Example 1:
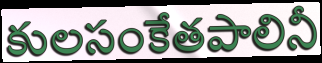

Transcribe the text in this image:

కులసంకేతపాలినీ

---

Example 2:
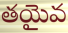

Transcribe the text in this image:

తయైవ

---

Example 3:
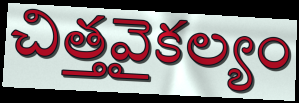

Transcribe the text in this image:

చిత్తవైకల్యం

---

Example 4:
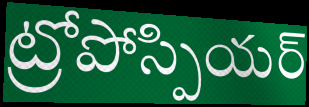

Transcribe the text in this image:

ట్రోపోస్పియర్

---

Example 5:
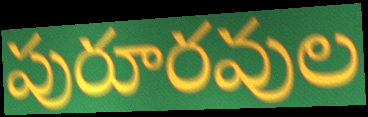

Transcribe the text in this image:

పురూరవుల